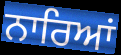
ਨਾਰਿਆਂ